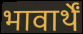
भावार्थें